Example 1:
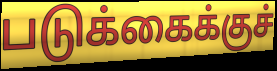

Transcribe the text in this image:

படுக்கைக்குச்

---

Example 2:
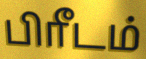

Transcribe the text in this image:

பிரீடம்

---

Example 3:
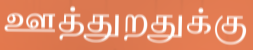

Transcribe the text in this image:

ஊத்துறதுக்கு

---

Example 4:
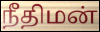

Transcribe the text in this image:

நீதிமன்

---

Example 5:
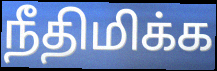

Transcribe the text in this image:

நீதிமிக்க